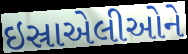
ઇસ્રાએલીઓને